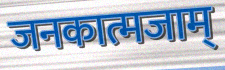
जनकात्मजाम्